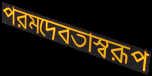
পরমদেবতাস্বরূপ